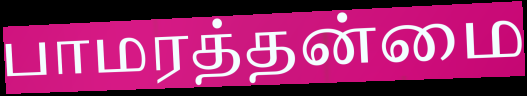
பாமரத்தன்மை